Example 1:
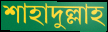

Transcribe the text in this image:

শাহাদুল্লাহ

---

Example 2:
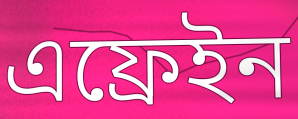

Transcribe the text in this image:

এফ্রেইন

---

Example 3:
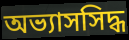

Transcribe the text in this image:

অভ্যাসসিদ্ধ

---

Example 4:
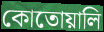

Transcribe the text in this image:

কোতোয়ালি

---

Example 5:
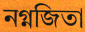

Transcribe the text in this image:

নগ্নজিতা